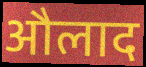
औलाद